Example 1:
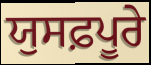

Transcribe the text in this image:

ਯੁਸਫ਼ਪੂਰੇ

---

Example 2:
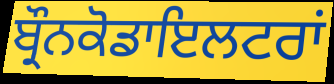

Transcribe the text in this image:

ਬ੍ਰੌਨਕੋਡਾਇਲਟਰਾਂ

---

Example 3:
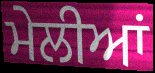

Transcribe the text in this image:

ਮੇਲੀਆਂ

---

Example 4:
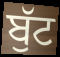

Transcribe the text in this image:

ਬੁੱਟ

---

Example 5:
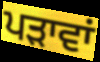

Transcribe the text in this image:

ਪੜਾਵਾਂ